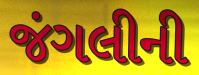
જંગલીની